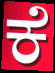
ಕೆ